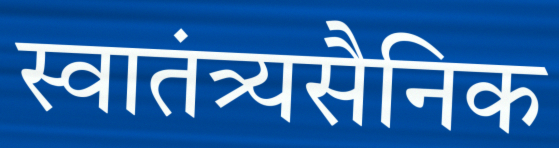
स्वातंत्र्यसैनिक